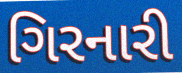
ગિરનારી